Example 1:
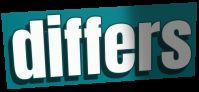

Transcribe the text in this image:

differs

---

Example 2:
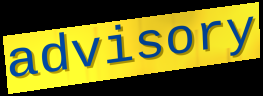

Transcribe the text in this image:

advisory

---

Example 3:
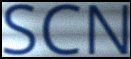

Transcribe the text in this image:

SCN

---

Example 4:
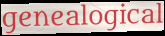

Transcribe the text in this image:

genealogical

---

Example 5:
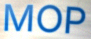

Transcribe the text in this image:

MOP